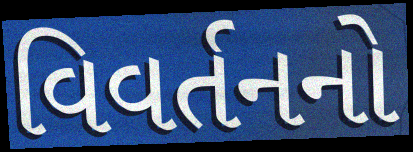
વિવર્તનનો